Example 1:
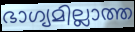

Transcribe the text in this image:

ഭാഗ്യമില്ലാത്ത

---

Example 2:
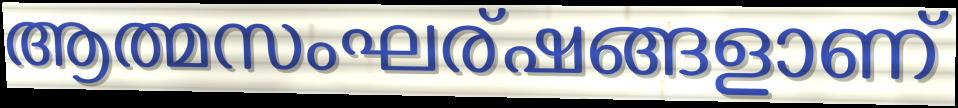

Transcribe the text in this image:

ആത്മസംഘര്ഷങ്ങളാണ്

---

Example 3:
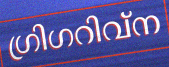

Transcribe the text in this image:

ഗ്രിഗറിവ്ന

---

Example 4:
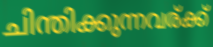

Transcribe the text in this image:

ചിന്തിക്കുന്നവര്ക്ക്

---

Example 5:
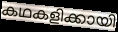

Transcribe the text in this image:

കഥകളിക്കായി